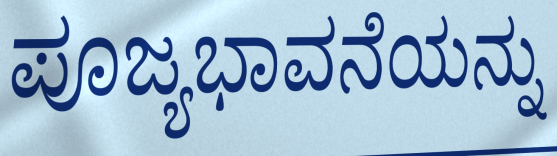
ಪೂಜ್ಯಭಾವನೆಯನ್ನು